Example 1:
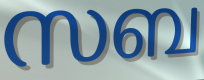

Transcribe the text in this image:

സബ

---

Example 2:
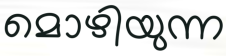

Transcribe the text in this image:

മൊഴിയുന്ന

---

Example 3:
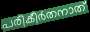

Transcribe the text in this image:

പരികീർതനാത്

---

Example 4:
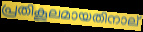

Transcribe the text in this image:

പ്രതികൂലമായതിനാല്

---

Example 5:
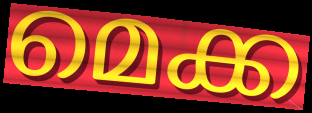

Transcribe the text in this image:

മെക്ക